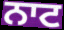
ਨਾਟ